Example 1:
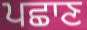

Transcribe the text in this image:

ਪਛਾਣ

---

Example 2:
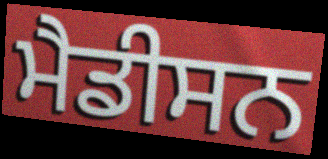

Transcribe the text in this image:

ਮੈਡੀਸਨ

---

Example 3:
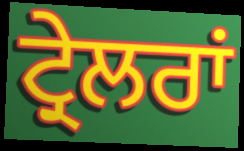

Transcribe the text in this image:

ਟ੍ਰੇਲਰਾਂ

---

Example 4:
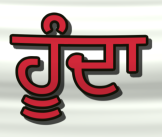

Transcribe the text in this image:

ਹੂੰਦਾ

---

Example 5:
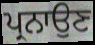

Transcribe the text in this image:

ਪ੍ਰਨਾਉਣ